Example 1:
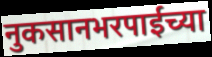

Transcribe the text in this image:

नुकसानभरपाईच्या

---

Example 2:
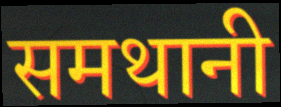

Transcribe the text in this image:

समथानी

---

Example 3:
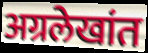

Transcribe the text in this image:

अग्रलेखांत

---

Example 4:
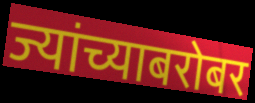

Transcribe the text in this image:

ज्यांच्याबरोबर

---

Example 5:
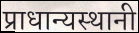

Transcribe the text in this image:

प्राधान्यस्थानी